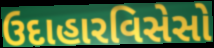
ઉદાહારવિસેસો